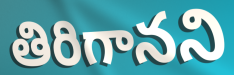
తిరిగానని